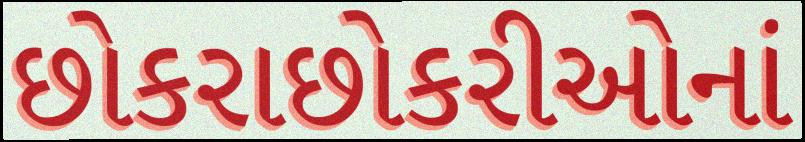
છોકરાછોકરીઓનાં